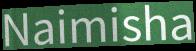
Naimisha